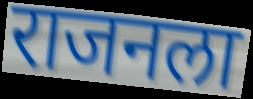
राजनला